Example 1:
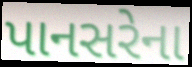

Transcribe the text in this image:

પાનસરેના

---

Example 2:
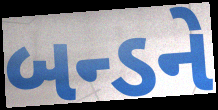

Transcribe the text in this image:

બન્ડને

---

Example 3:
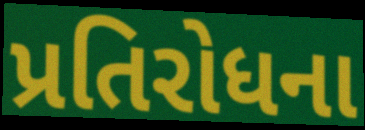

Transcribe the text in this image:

પ્રતિરોધના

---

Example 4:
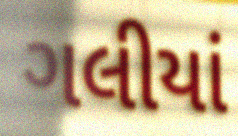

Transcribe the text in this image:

ગલીયાં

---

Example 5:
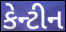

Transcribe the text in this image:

કેન્ટીન